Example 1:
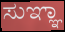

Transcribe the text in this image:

ಸುಞ್ಞಾ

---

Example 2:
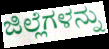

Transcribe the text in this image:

ಜಿಲ್ಲೆಗಳನ್ನು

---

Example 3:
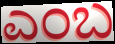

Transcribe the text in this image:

ಎಂಬ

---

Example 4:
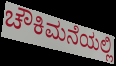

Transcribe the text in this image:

ಚೌಕಿಮನೆಯಲ್ಲಿ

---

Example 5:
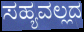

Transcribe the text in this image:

ಸಹ್ಯವಲ್ಲದ